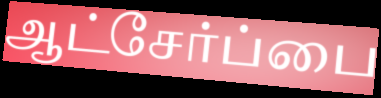
ஆட்சேர்ப்பை